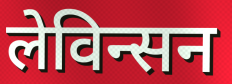
लेविन्सन